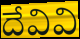
దేవివి